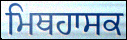
ਮਿਥਹਾਸਕ